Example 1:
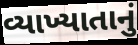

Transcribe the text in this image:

વ્યાખ્યાતાનું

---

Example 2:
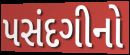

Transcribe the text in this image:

પસંદગીનો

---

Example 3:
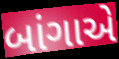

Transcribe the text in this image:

બાંગાએ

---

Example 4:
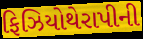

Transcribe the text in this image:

ફિઝિયોથેરાપીની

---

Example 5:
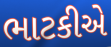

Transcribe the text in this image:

ભાટકીએ